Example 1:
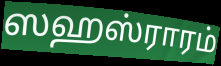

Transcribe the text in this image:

ஸஹஸ்ராரம்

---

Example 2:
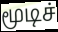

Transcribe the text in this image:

மூடிச்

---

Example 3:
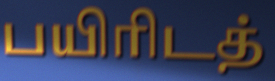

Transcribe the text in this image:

பயிரிடத்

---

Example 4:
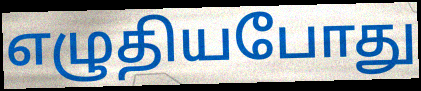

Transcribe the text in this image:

எழுதியபோது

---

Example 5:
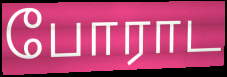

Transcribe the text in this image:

போராட